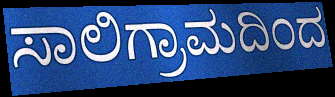
ಸಾಲಿಗ್ರಾಮದಿಂದ